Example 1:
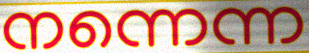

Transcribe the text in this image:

നന്നെന്ന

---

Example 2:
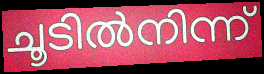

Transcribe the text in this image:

ചൂടിൽനിന്ന്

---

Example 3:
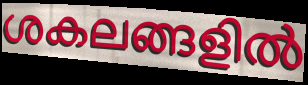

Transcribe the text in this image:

ശകലങ്ങളിൽ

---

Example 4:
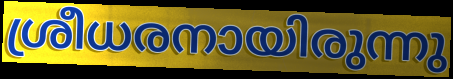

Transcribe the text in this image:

ശ്രീധരനായിരുന്നു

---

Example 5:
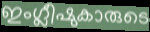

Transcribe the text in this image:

ഇംഗ്ലീഷുകാരുടെ